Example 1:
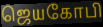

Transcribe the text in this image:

ஜெயகோபி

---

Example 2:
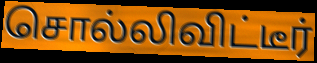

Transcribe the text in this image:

சொல்லிவிட்டீர்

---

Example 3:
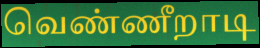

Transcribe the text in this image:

வெண்ணீறாடி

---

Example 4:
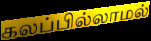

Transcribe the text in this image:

கலப்பில்லாமல்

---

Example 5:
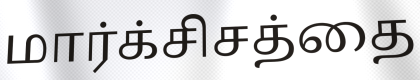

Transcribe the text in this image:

மார்க்சிசத்தை